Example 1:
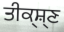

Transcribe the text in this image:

ਤੀਕ੍ਸ਼੍ਣ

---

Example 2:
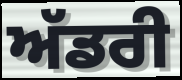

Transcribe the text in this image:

ਅੱਡਰੀ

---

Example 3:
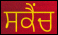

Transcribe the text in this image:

ਸਕੈਂਚ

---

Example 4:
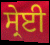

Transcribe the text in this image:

ਸ੍ਰੇਈ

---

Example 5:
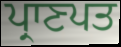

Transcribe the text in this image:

ਪ੍ਰਾਣਪਤ